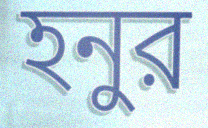
হনুর